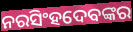
ନରସିଂହଦେବଙ୍କର